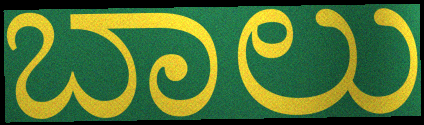
ಬಾಲು